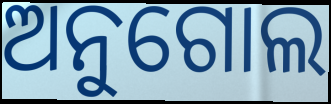
ଅନୁଗୋଲ